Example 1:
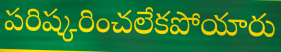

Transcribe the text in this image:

పరిష్కరించలేకపోయారు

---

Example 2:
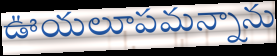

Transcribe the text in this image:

ఊయలూపమన్నాను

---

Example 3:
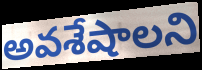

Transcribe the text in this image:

అవశేషాలని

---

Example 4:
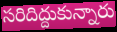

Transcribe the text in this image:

సరిదిద్దుకున్నారు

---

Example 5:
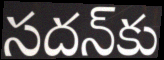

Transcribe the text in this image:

సదన్‌కు